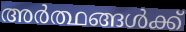
അർത്ഥങ്ങൾക്ക്